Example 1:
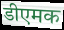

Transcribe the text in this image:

डीएमक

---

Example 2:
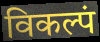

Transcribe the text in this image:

विकल्पं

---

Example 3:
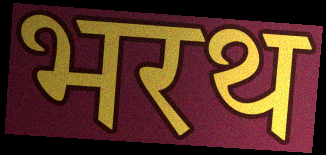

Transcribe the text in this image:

भरथ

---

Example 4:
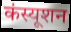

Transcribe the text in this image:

कंस्यूशन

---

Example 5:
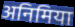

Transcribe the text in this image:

अनिमिया